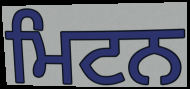
ਮਿਟਨ